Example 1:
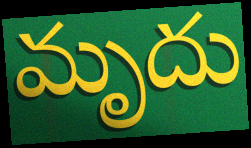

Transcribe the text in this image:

మృదు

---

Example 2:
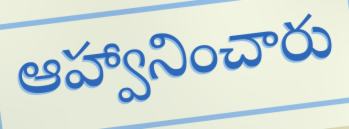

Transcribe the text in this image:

ఆహ్వానించారు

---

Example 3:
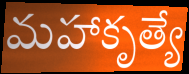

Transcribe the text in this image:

మహాకృత్యే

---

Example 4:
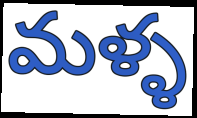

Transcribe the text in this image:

మళ్ళ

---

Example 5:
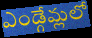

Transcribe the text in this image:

ఎండ్గేమ్లలో